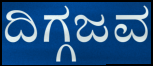
ದಿಗ್ಗಜವ